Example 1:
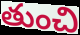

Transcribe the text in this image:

తుంచి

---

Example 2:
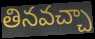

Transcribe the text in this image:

తినవచ్చా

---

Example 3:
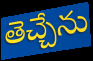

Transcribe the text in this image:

తెచ్చేను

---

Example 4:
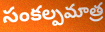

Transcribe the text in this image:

సంకల్పమాత్ర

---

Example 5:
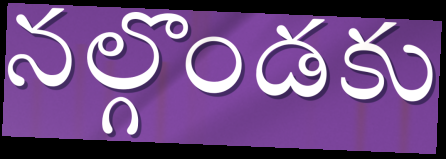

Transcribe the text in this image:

నల్గొండకు